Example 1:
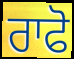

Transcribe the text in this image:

ਰਾਫੋ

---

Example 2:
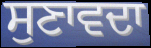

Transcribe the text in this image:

ਸੁਣਾਵਦਾ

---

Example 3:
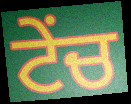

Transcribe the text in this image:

ਟੇਂਚ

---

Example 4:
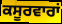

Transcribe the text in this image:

ਕਸੂਰਵਾਰਾਂ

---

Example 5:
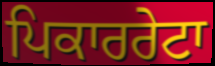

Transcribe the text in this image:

ਪਿਕਾਰਰੇਟਾ